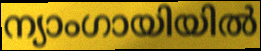
ന്യാംഗായിയിൽ